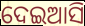
ଦେଇଆସି